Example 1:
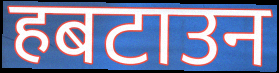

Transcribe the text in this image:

हबटाउन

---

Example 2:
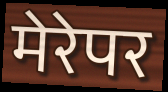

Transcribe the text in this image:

मेरेपर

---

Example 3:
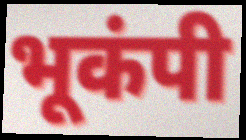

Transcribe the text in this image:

भूकंपी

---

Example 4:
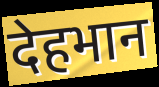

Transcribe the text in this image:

देहभान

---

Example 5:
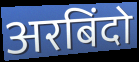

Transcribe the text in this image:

अरबिंदो